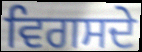
ਵਿਗਸਦੇ